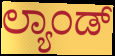
ಲ್ಯಾಂಡ್